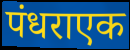
पंधराएक